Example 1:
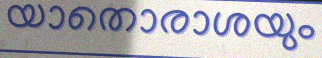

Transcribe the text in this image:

യാതൊരാശയും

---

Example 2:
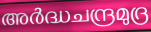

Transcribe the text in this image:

അർദ്ധചന്ദ്രമുദ്ര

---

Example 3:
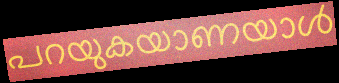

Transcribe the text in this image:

പറയുകയാണയാൾ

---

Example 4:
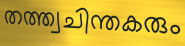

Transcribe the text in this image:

തത്ത്വചിന്തകരും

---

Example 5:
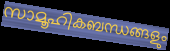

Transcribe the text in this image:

സാമൂഹികബന്ധങ്ങളും